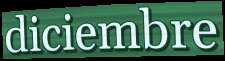
diciembre